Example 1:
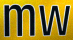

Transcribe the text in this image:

mw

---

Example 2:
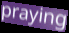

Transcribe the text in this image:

praying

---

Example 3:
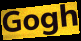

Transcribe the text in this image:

Gogh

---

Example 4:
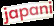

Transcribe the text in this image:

japani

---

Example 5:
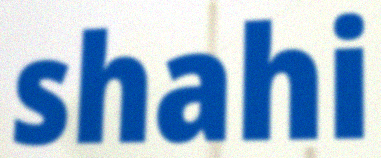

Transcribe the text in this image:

shahi